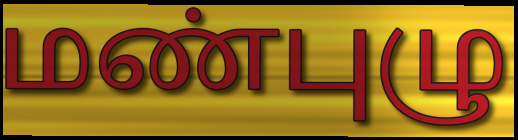
மண்புழு